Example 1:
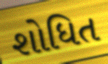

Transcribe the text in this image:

શોધિત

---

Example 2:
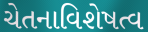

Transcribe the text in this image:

ચેતનાવિશેષત્વ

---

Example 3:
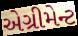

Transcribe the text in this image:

એગ્રીમેન્ટ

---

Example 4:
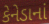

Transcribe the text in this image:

કેનેડાનાં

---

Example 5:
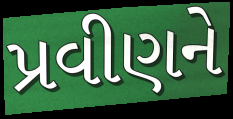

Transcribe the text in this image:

પ્રવીણને